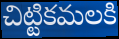
చిట్టికమలకి